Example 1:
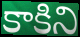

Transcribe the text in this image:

కాకిని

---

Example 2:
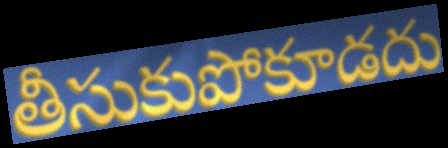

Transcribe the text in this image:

తీసుకుపోకూడదు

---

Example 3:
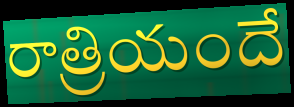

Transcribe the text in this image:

రాత్రియందే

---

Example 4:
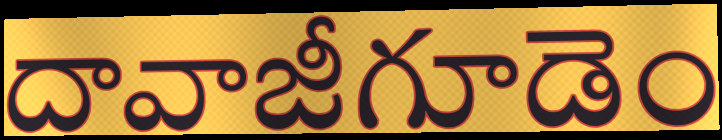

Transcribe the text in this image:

దావాజీగూడెం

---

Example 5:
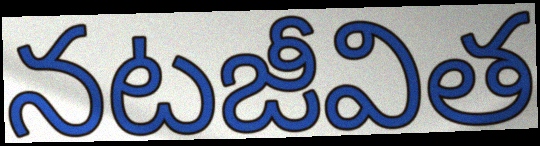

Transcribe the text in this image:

నటజీవిత